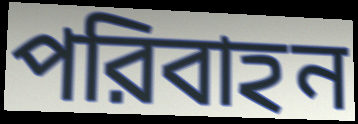
পরিবাহন